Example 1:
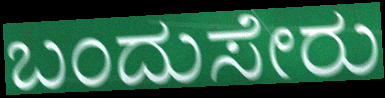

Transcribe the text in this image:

ಬಂದುಸೇರು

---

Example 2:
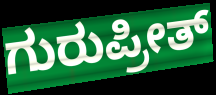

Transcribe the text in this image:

ಗುರುಪ್ರೀತ್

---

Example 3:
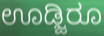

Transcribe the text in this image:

ಊಡ್ಜಿರೂ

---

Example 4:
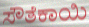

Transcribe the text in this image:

ಸೌತೆಕಾಯಿ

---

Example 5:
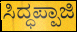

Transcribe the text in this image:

ಸಿದ್ಧಪ್ಪಾಜಿ